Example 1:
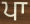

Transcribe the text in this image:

ਪਾ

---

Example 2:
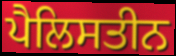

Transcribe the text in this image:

ਪੈਲਿਸਤੀਨ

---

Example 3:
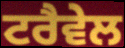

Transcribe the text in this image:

ਟਰੈਵੇਲ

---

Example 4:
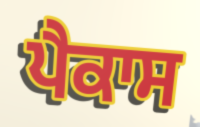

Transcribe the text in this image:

ਪੈਕਾਸ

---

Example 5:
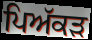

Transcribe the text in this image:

ਪਿਅੱਕੜ